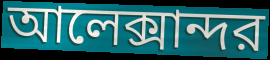
আলেক্সান্দর